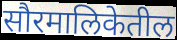
सौरमालिकेतील